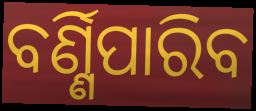
ବର୍ଣ୍ଣିପାରିବ